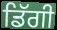
ਡਿੱਗੀ